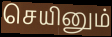
செயினும்